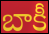
బాకీ